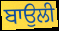
ਬਾਉਲੀ